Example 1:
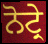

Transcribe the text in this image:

ਨੋਟ੍ਰੇ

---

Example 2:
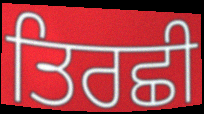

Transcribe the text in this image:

ਤਿਰਛੀ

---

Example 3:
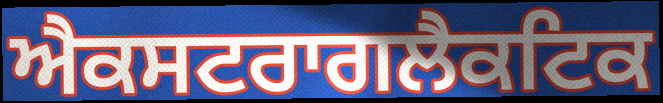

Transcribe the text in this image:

ਐਕਸਟਰਾਗਲੈਕਟਿਕ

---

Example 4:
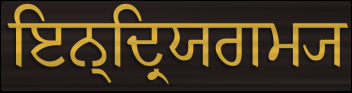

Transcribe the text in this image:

ਇਨ੍ਦ੍ਰਿਯਗਮ੍ਯ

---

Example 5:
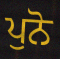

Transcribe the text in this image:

ਪੁਨੋ